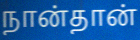
நான்தான்